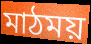
মাঠময়